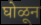
घोळून